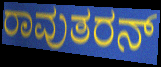
ರಾವುತರನ್